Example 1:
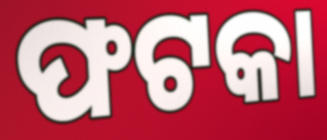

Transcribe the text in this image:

ଫଟକା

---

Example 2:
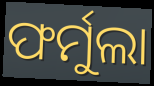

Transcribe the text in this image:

ଫର୍ମୁଲା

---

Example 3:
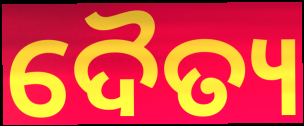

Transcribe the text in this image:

ଦୈତ୍ୟ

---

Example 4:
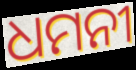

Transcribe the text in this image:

ଧମନୀ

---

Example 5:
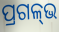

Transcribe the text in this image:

ପ୍ରଗଳ୍‌ଭ